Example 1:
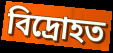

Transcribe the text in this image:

বিদ্ৰোহত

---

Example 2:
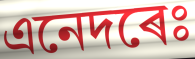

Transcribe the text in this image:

এনেদৰেঃ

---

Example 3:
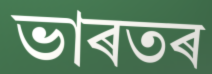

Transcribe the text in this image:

ভাৰতৰ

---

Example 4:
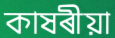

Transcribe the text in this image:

কাষৰীয়া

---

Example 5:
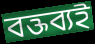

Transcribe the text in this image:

বক্তব্যই